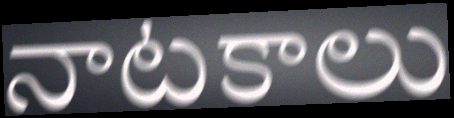
నాటకాలు